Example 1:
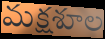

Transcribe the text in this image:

మక్షశూల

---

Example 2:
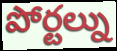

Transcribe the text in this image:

పోర్టల్ను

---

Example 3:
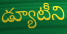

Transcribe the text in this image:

డ్యూటీని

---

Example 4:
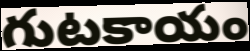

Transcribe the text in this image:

గుటకాయం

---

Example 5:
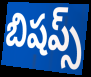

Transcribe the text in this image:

బిషప్స్